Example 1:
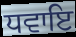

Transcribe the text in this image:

ਧਵਾਇ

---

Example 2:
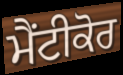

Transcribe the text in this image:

ਮੈਂਟੀਕੋਰ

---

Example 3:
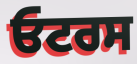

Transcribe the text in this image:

ਓਟਰਸ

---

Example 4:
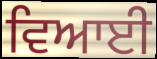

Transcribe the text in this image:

ਵਿਆਈ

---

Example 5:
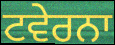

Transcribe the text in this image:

ਟਵੇਰਨਾ